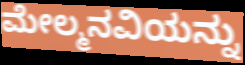
ಮೇಲ್ಮನವಿಯನ್ನು